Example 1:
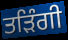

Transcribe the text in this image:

ਤੜਿੰਗੀ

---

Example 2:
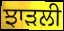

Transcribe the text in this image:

ਝਾੜਲੀ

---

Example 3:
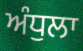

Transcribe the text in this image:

ਅੰਧੁਲਾ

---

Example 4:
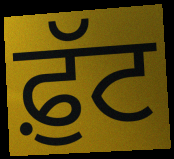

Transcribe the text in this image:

ਫ਼ੁੱਟ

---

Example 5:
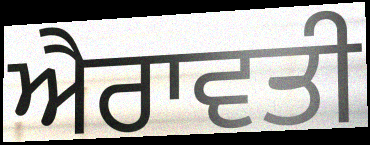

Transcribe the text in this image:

ਐਰਾਵਤੀ